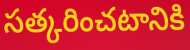
సత్కరించటానికి